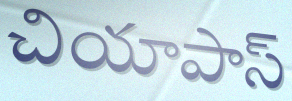
చియాపాస్